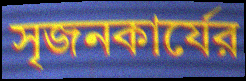
সৃজনকার্যের